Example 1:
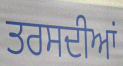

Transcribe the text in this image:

ਤਰਸਦੀਆਂ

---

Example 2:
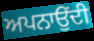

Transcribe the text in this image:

ਅਪਨਾਉਂਦੀ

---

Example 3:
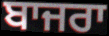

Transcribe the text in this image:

ਬਾਜਰਾ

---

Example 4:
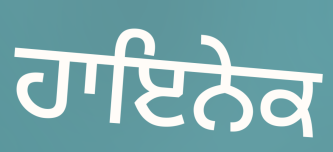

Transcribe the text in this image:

ਹਾਇਨੇਕ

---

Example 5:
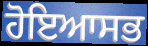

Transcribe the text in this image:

ਹੋਇਆਸਭ